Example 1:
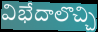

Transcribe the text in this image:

విభేదాలొచ్చి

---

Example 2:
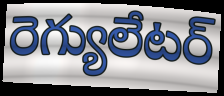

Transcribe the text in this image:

రెగ్యులేటర్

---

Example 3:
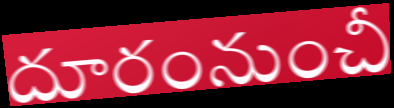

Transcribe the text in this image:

దూరంనుంచీ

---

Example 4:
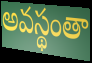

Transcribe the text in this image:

అవస్థంతా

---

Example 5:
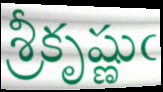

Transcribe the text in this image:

శ్రీకృష్ణుఁ